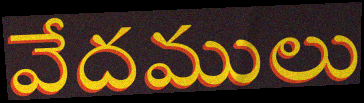
వేదములు